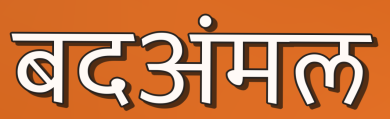
बदअंमल